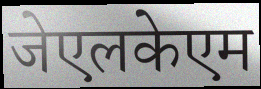
जेएलकेएम